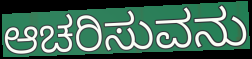
ಆಚರಿಸುವನು